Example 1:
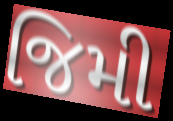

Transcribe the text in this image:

જિમી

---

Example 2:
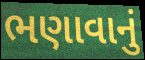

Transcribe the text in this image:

ભણાવાનું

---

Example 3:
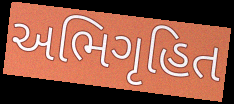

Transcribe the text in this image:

અભિગૃહિત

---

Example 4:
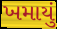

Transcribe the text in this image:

ખમાયું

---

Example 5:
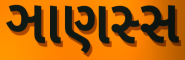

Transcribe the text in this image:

ઞાણસ્સ